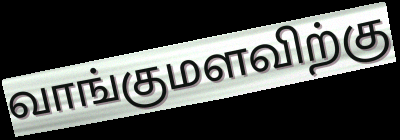
வாங்குமளவிற்கு